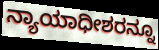
ನ್ಯಾಯಾಧೀಶರನ್ನೂ